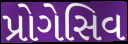
પ્રોગેસિવ